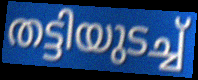
തട്ടിയുടച്ച്